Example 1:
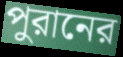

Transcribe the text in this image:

পুরানের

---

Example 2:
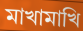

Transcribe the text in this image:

মাখামাখি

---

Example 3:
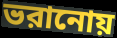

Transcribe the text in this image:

ভরানোয়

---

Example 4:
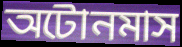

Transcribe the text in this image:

অটোনমাস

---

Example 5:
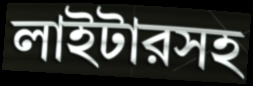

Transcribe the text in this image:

লাইটারসহ